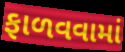
ફાળવવામાં